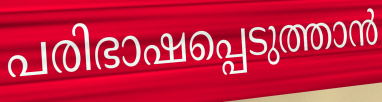
പരിഭാഷപ്പെടുത്താൻ